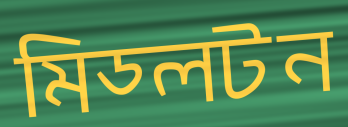
মিড্লটন